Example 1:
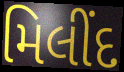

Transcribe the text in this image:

મિલીંદ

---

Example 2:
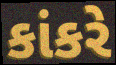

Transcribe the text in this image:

કાંકરે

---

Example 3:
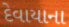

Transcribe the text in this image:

દેવાયાના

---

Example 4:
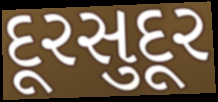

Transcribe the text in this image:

દૂરસુદૂર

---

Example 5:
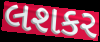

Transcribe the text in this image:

લશકર